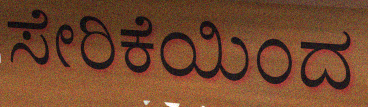
ಸೇರಿಕೆಯಿಂದ